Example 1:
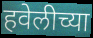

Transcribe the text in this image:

हवेलीच्या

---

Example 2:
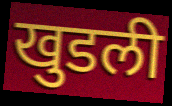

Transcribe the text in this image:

खुडली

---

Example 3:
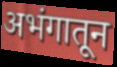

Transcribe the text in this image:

अभंगातून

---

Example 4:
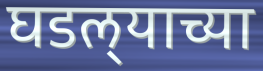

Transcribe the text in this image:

घडल्याच्या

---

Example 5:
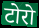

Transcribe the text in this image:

टोरो